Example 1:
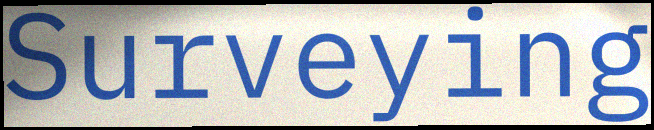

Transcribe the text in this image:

Surveying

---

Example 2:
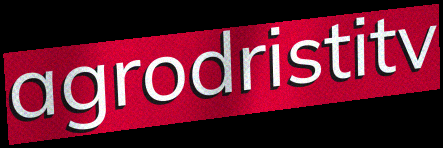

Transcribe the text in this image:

agrodristitv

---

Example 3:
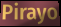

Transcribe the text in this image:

Pirayo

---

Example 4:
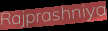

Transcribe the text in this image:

Rajprashniya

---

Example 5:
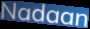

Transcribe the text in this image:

Nadaan